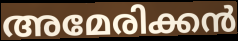
അമേരിക്കൻ